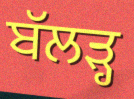
ਬੱਲੜ੍ਹ